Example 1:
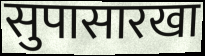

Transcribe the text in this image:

सुपासारखा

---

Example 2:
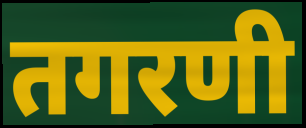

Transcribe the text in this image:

तगरणी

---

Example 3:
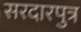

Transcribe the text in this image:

सरदारपुत्र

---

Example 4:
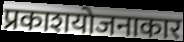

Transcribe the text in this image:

प्रकाशयोजनाकार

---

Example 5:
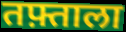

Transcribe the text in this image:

तफ़्ताला